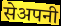
सेअपनी